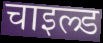
चाइल्ड